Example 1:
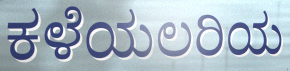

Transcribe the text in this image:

ಕಳೆಯಲರಿಯ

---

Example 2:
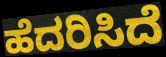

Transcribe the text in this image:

ಹೆದರಿಸಿದೆ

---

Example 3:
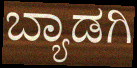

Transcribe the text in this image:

ಬ್ಯಾಡಗಿ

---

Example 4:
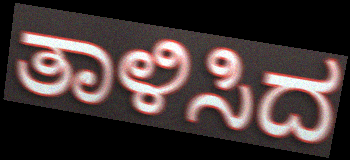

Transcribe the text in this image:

ತಾಳಿಸಿದ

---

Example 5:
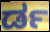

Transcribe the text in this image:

ರ್ಡ